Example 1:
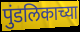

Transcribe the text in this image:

पुंडलिकाच्या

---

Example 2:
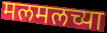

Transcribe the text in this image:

मलमलच्या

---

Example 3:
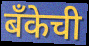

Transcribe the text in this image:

बँकेची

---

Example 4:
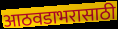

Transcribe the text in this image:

आठवडाभरासाठी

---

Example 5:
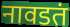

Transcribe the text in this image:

नावडतं